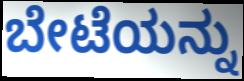
ಬೇಟೆಯನ್ನು